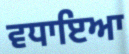
ਵਧਾਇਆ